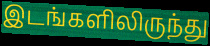
இடங்களிலிருந்து